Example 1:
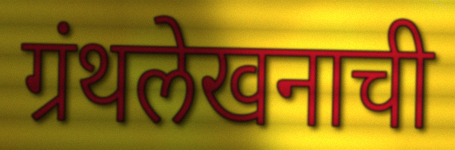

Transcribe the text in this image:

ग्रंथलेखनाची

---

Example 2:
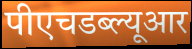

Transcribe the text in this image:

पीएचडब्ल्यूआर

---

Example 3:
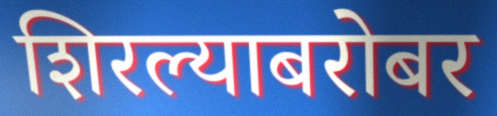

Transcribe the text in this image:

शिरल्याबरोबर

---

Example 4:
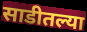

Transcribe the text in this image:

साडीतल्या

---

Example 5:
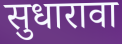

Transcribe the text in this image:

सुधारावा